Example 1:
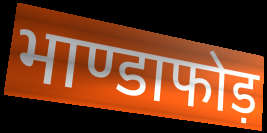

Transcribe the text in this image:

भाण्डाफोड़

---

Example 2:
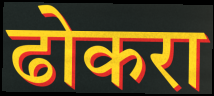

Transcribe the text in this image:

ढोकरा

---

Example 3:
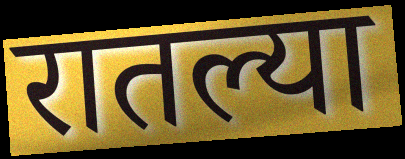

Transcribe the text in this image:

रातल्या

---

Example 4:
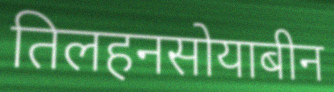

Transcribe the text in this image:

तिलहनसोयाबीन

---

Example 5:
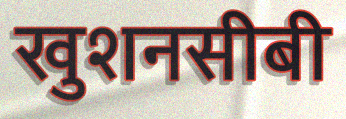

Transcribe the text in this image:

खुशनसीबी